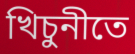
খিচুনীতে